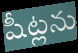
షీట్లను